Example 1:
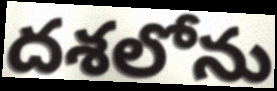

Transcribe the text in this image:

దశలోను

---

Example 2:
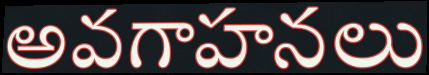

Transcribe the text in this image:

అవగాహనలు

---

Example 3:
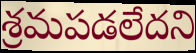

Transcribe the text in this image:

శ్రమపడలేదని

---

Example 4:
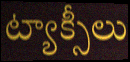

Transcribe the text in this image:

ట్యాక్సీలు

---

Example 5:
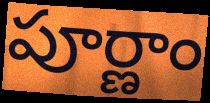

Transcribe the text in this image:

పూర్ణాం